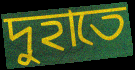
দুহাতে